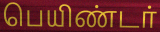
பெயிண்டர்